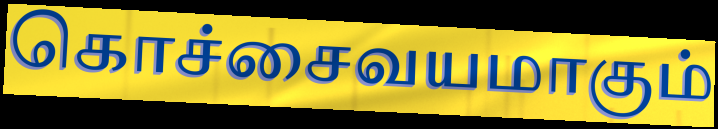
கொச்சைவயமாகும்